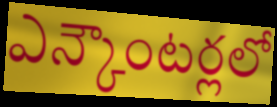
ఎన్కౌంటర్లలో